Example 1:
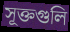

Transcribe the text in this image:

সূক্তগুলি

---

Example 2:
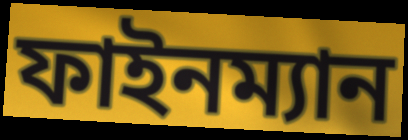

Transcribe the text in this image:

ফাইনম্যান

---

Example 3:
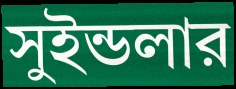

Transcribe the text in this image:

সুইন্ডলার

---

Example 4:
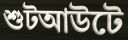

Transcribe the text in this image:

শুটআউটে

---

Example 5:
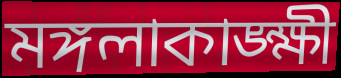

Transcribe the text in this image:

মঙ্গলাকাঙ্ক্ষী